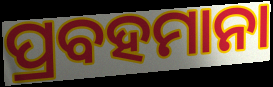
ପ୍ରବହମାନା